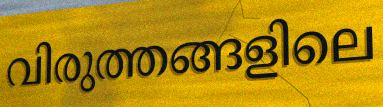
വിരുത്തങ്ങളിലെ